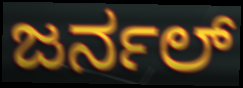
ಜರ್ನಲ್